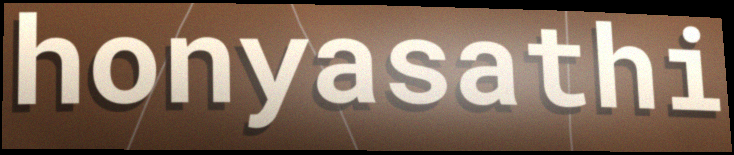
honyasathi